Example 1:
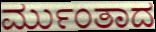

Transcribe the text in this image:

ರ್ಮುಂತಾದ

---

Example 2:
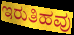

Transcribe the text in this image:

ಇರುತಿಹವು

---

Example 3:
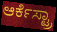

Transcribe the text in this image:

ಆರ್ಕೆಸ್ಟ್ರಾ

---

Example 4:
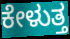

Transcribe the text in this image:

ಕೇಳುತ್ತ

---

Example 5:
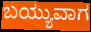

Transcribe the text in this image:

ಬಯ್ಯುವಾಗ